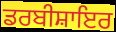
ਡਰਬੀਸ਼ਾਇਰ